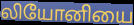
லியோனியை